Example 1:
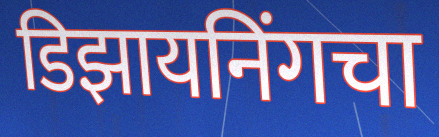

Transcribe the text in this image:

डिझायनिंगचा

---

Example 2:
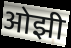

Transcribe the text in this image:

ओझी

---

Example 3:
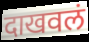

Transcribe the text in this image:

दाखवलं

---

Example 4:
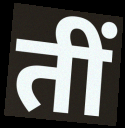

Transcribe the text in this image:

तीं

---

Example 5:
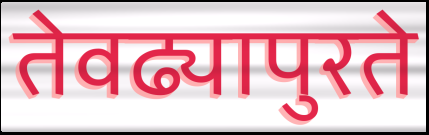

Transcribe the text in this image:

तेवढ्यापुरते